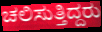
ಚಲಿಸುತ್ತಿದ್ದರು